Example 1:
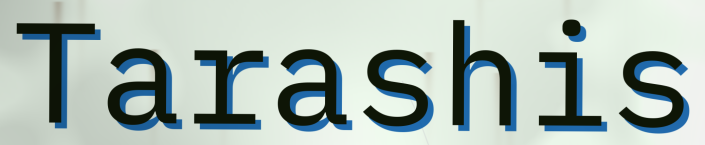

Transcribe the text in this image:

Tarashis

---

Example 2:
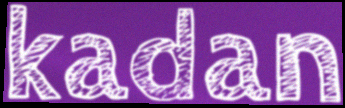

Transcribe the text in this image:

kadan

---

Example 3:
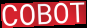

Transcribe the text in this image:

COBOT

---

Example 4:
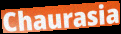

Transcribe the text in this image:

Chaurasia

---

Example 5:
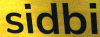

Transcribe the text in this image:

sidbi